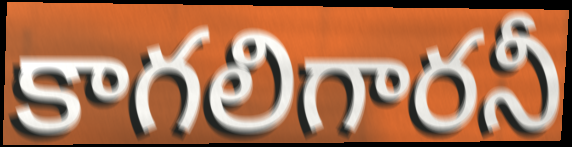
కాగలిగారనీ